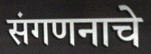
संगणनाचे